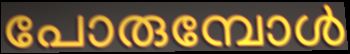
പോരുമ്പോൾ